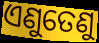
ଏଣୁତେଣୁ